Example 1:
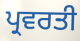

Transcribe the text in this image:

ਪ੍ਰਵਰਤੀ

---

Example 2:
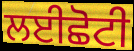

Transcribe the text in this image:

ਲਈਛੋਟੀ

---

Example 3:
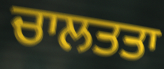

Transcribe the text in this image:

ਚਾਲਤਤਾ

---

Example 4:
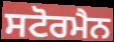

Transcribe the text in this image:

ਸਟੋਰਮੈਨ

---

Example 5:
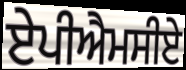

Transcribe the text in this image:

ਏਪੀਐਮਸੀਏ